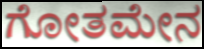
ಗೋತಮೇನ